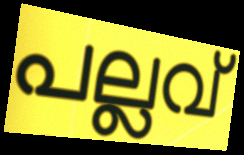
പല്ലവ്